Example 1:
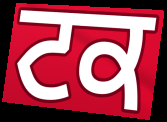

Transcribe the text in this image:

ਟਕ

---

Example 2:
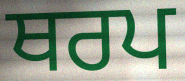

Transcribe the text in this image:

ਥਰਪ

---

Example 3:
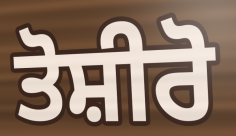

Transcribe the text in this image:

ਤੋਸ਼ੀਰੋ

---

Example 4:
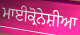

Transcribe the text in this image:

ਮਾਈਕ੍ਰੋਨੇਸ਼ੀਆ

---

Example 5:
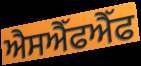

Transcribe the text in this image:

ਐਸਐੱਫਐੱਫ